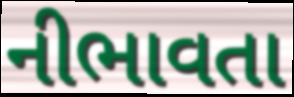
નીભાવતા